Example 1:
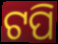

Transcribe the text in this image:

ଟପି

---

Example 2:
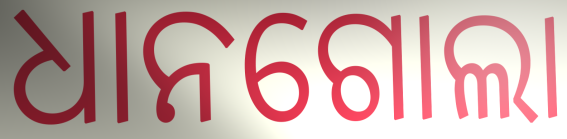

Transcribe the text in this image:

ଧାନଗୋଲା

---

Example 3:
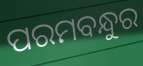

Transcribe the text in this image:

ପରମବନ୍ଧୁର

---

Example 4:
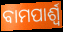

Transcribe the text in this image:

ବାମପାର୍ଶ୍ଵ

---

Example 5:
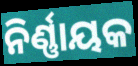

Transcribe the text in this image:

ନିର୍ଣ୍ଣାୟକ